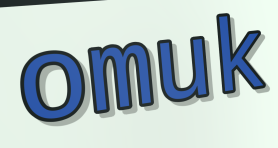
omuk